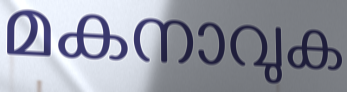
മകനാവുക